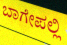
ಬಾಗೇಪಲ್ಲಿ